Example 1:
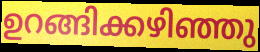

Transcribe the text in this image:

ഉറങ്ങിക്കഴിഞ്ഞു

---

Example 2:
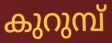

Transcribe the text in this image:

കുറുമ്പ്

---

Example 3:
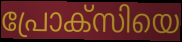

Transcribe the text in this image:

പ്രോക്സിയെ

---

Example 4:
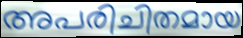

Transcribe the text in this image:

അപരിചിതമായ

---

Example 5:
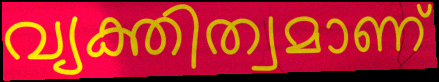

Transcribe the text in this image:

വ്യക്തിത്വമാണ്